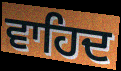
ਵਾਹਿਦ